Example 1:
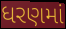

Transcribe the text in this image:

ધરણમાં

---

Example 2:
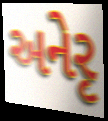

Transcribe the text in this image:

અનેરૃ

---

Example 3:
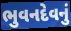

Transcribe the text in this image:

ભુવનદેવનું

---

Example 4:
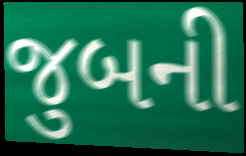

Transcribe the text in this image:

જુબની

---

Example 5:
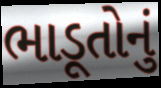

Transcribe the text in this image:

ભાડૂતોનું